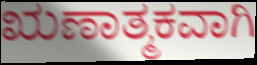
ಋಣಾತ್ಮಕವಾಗಿ